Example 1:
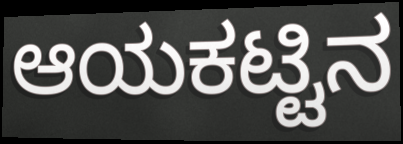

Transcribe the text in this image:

ಆಯಕಟ್ಟಿನ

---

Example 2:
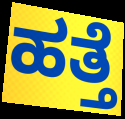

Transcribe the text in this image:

ಹತ್ತೆ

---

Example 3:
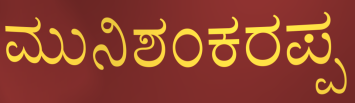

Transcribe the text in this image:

ಮುನಿಶಂಕರಪ್ಪ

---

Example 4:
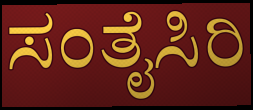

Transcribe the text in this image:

ಸಂತೈಸಿರಿ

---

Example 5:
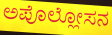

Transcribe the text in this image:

ಅಪೊಲ್ಲೋಸನ